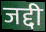
जद्दी